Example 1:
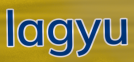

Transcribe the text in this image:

lagyu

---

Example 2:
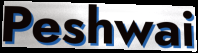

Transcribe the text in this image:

Peshwai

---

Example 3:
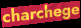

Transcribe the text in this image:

charchege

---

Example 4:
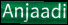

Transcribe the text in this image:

Anjaadi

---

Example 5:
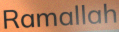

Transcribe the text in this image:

Ramallah